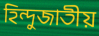
হিন্দুজাতীয়